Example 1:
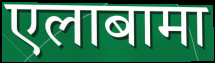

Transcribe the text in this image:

एलाबामा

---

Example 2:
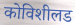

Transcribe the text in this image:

कोविशीलड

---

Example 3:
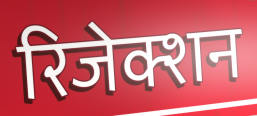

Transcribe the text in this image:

रिजेक्शन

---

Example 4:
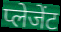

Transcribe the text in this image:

प्लेजेंट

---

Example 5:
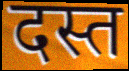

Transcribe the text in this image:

दस्त